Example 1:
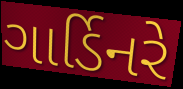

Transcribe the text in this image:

ગાર્ડિનરે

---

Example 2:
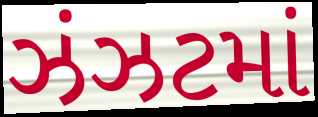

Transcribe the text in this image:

ઝંઝટમાં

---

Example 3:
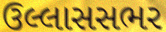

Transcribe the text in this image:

ઉલ્લાસસભર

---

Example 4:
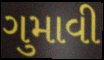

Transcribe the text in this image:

ગુમાવી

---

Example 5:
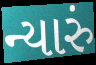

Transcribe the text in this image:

ન્યારું